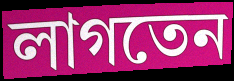
লাগতেন